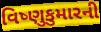
વિષ્ણુકુમારની